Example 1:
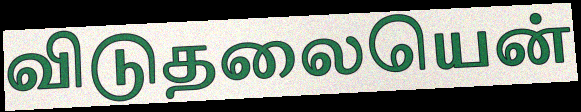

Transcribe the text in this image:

விடுதலையென்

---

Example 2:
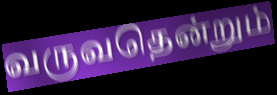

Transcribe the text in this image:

வருவதென்றும்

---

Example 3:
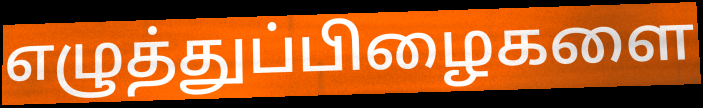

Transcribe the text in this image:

எழுத்துப்பிழைகளை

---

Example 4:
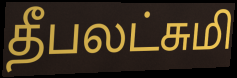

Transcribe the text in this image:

தீபலட்சுமி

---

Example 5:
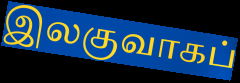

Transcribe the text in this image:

இலகுவாகப்